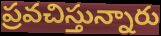
ప్రవచిస్తున్నారు